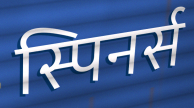
स्पिनर्स